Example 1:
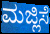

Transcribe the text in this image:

ಮಜ್ಲಿಸೆ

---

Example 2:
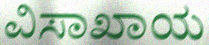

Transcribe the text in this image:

ವಿಸಾಖಾಯ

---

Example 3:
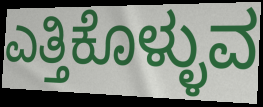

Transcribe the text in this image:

ಎತ್ತಿಕೊಳ್ಳುವ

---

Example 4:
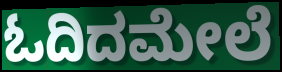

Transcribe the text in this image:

ಓದಿದಮೇಲೆ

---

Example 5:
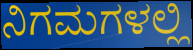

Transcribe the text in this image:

ನಿಗಮಗಳಲ್ಲಿ